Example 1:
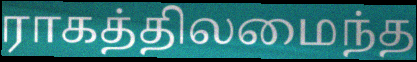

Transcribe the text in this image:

ராகத்திலமைந்த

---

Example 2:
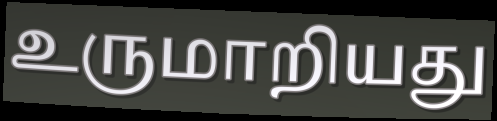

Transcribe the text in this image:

உருமாறியது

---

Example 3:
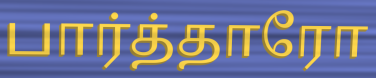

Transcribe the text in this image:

பார்த்தாரோ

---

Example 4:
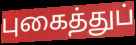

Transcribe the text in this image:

புகைத்துப்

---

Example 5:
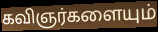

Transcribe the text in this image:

கவிஞர்களையும்